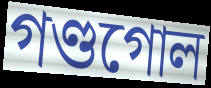
গণ্ডগোল